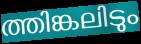
ത്തിങ്കലിടും